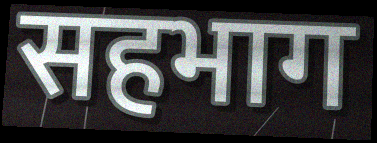
सहभाग